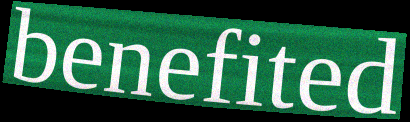
benefited